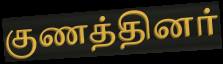
குணத்தினர்